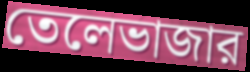
তেলেভাজার